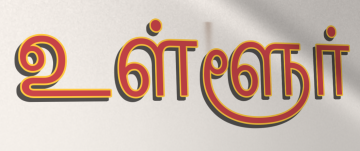
உள்ளூர்